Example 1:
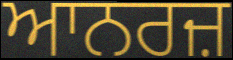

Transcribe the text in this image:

ਆਨਰਜ਼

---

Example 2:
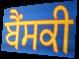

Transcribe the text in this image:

ਬੈਂਸਕੀ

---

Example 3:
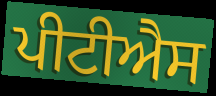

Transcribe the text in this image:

ਪੀਟੀਐਸ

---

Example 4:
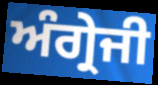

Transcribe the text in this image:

ਅੰਗ੍ਰੇਜੀ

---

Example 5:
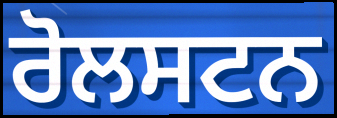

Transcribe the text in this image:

ਰੋਲਸਟਨ